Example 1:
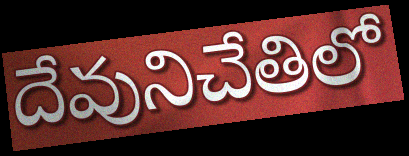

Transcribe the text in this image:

దేవునిచేతిలో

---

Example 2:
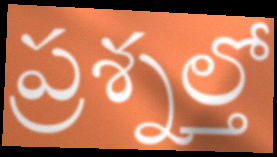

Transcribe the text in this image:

ప్రశ్నల్తో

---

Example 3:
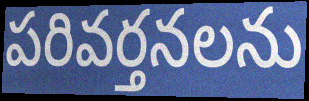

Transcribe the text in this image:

పరివర్తనలను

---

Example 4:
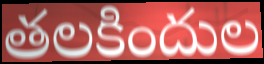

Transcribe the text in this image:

తలకిందుల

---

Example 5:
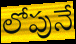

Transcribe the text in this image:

లోపునే